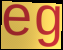
eg